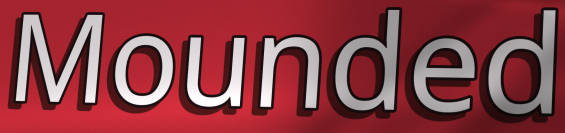
Mounded